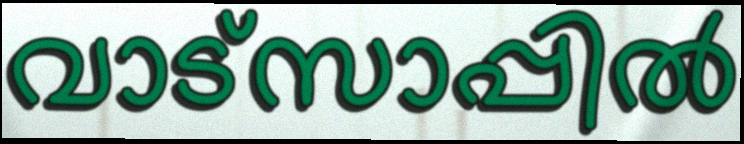
വാട്സാപ്പിൽ